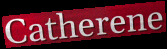
Catherene